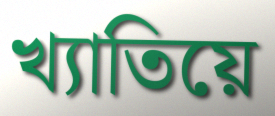
খ্যাতিয়ে